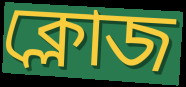
ক্লোজ